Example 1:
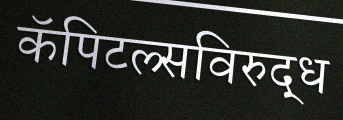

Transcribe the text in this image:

कॅपिटल्सविरुद्ध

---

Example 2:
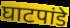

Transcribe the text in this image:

घाटपांडे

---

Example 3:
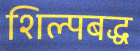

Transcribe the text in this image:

शिल्पबद्ध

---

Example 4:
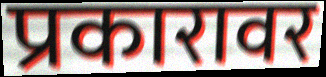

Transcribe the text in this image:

प्रकारावर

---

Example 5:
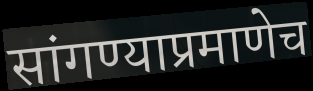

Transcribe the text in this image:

सांगण्याप्रमाणेच